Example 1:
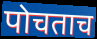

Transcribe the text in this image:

पोचताच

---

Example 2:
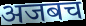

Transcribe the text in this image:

अजबच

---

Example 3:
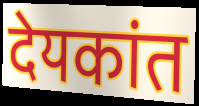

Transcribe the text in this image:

देयकांत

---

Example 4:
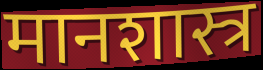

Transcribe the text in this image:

मानशास्त्र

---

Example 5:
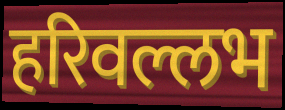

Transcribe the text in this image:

हरिवल्लभ